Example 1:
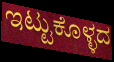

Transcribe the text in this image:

ಇಟ್ಟುಕೊಳ್ಳದ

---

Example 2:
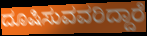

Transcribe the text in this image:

ದೂಷಿಸುವವರಿದ್ದಾರೆ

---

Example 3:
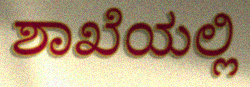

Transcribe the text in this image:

ಶಾಖೆಯಲ್ಲಿ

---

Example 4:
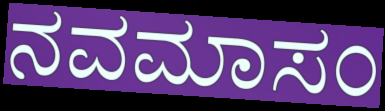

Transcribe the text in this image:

ನವಮಾಸಂ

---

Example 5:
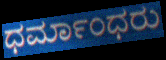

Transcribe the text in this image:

ಧರ್ಮಾಂಧರು